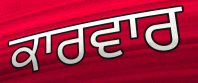
ਕਾਰਵਾਰ